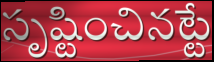
సృష్టించినట్టే